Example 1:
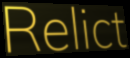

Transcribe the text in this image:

Relict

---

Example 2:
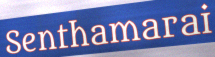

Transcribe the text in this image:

Senthamarai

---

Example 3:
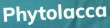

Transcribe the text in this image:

Phytolacca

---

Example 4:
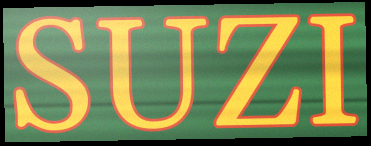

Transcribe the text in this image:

SUZI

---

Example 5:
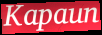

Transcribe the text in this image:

Kapaun